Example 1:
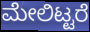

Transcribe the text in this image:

ಮೇಲಿಟ್ಟರೆ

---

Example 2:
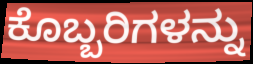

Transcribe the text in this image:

ಕೊಬ್ಬರಿಗಳನ್ನು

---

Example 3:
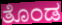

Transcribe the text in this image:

ತೊಂಡ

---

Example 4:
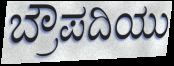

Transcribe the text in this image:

ಬ್ರೌಪದಿಯು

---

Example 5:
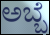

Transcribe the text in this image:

ಅಬ್ಬೆ